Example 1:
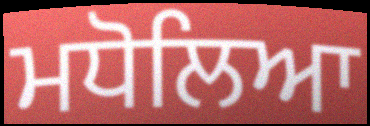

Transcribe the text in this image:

ਮਧੋਲਿਆ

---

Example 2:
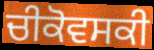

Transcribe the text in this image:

ਚੀਕੋਵਸਕੀ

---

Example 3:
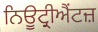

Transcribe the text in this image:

ਨਿਊਟ੍ਰੀਐਂਟਜ਼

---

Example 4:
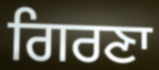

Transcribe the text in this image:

ਗਿਰਣਾ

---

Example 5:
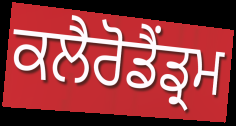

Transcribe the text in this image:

ਕਲੈਰੋਡੈਂਡ੍ਰਮ